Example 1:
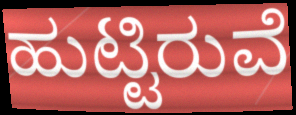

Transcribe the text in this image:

ಹುಟ್ಟಿರುವೆ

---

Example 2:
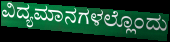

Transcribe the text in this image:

ವಿದ್ಯಮಾನಗಳಲ್ಲೊಂದು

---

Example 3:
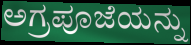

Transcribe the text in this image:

ಅಗ್ರಪೂಜೆಯನ್ನು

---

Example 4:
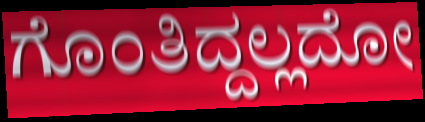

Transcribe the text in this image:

ಗೊಂತಿದ್ದಲ್ಲದೋ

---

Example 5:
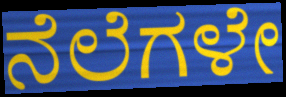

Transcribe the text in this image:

ನೆಲೆಗಳೇ